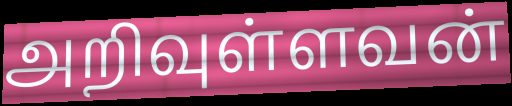
அறிவுள்ளவன்